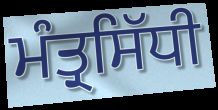
ਮੰਤ੍ਰਸਿੱਧੀ